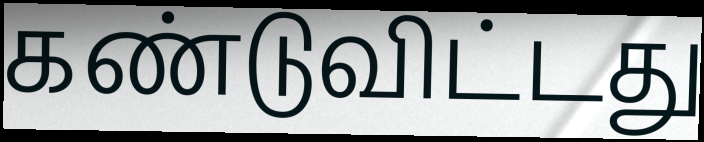
கண்டுவிட்டது